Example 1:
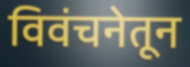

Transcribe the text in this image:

विवंचनेतून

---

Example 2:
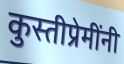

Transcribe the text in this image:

कुस्तीप्रेमींनी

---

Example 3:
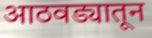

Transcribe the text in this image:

आठवड्यातून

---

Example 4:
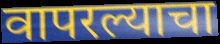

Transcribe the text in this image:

वापरल्याचा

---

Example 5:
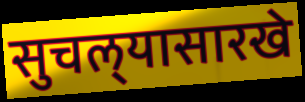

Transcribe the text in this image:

सुचल्यासारखे